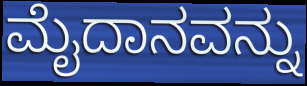
ಮೈದಾನವನ್ನು